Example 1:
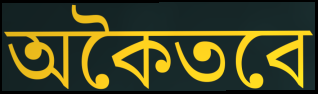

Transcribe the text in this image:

অকৈতবে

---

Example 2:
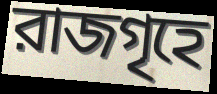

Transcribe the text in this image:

রাজগৃহে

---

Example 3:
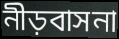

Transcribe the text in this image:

নীড়বাসনা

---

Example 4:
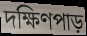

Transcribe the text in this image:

দক্ষিণপাড়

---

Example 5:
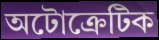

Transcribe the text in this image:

অটোক্রেটিক